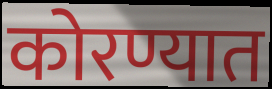
कोरण्यात